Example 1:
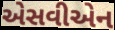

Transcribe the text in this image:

એસવીએન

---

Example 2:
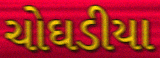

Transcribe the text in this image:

ચોઘડીયા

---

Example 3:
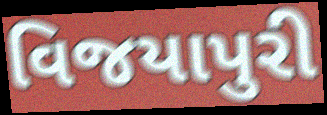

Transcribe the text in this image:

વિજયાપુરી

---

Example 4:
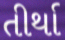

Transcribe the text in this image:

તીર્થા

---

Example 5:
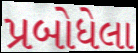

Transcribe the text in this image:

પ્રબોધેલા